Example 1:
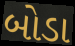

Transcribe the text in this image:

બોડા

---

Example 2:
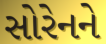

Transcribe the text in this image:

સોરેનને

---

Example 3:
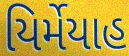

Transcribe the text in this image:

યિર્મેયાહ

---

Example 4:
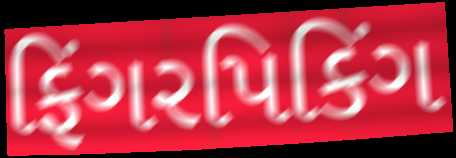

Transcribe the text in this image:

ફિંગરપિકિંગ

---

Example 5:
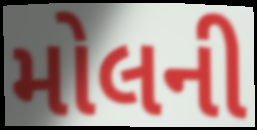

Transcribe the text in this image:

મોલની